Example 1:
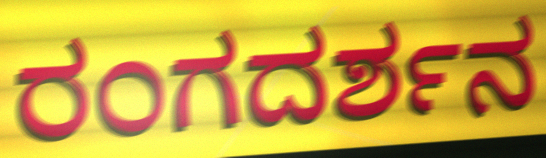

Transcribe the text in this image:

ರಂಗದರ್ಶನ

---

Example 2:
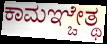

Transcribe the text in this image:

ಕಾಮಞ್ಚೇತ್ಥ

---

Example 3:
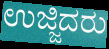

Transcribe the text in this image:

ಉಜ್ಜಿದರು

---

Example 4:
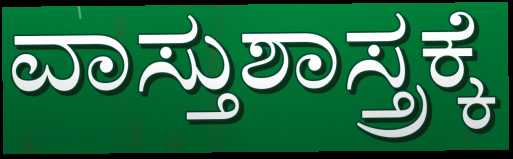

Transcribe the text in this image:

ವಾಸ್ತುಶಾಸ್ತ್ರಕ್ಕೆ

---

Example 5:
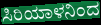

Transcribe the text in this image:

ಸಿರಿಯಾಳನಿಂದ